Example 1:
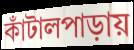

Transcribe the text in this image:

কাঁটালপাড়ায়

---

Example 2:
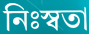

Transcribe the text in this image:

নিঃস্বতা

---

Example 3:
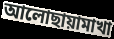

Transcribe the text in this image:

আলোছায়ামাখা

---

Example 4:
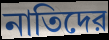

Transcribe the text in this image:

নাতিদের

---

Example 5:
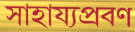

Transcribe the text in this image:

সাহায্যপ্রবণ